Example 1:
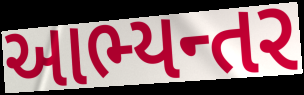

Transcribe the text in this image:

આભ્યન્તર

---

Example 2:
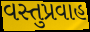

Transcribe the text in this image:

વસ્તુપ્રવાહ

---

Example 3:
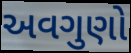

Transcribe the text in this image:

અવગુણો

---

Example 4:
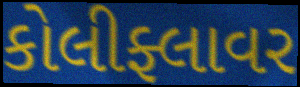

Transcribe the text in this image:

કોલીફ્લાવર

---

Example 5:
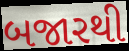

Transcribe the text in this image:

બજારથી